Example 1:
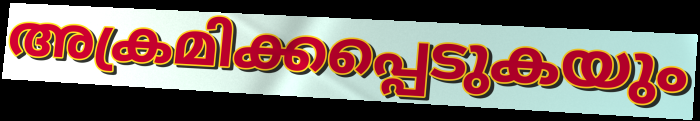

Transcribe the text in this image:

അക്രമിക്കപ്പെടുകയും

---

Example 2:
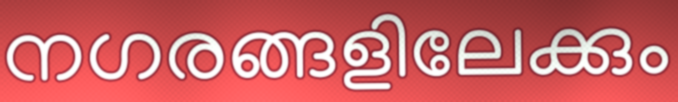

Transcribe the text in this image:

നഗരങ്ങളിലേക്കും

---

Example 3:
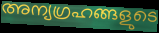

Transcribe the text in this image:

അന്യഗ്രഹങ്ങളുടെ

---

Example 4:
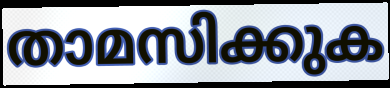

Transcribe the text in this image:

താമസിക്കുക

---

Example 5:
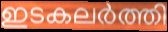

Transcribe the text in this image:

ഇടകലർത്തി